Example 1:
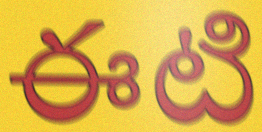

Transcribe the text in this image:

ఈటి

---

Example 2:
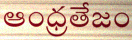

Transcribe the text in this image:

ఆంధ్రతేజం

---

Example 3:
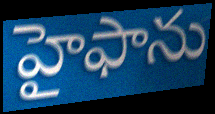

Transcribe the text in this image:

హైఫాను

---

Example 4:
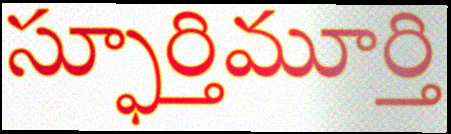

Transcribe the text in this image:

స్ఫూర్తిమూర్తి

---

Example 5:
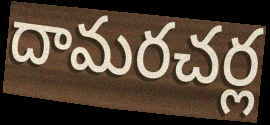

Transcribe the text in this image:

దామరచర్ల